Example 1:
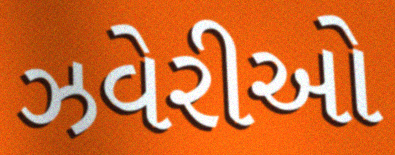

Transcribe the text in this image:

ઝવેરીઓ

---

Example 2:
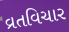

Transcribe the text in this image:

વ્રતવિચાર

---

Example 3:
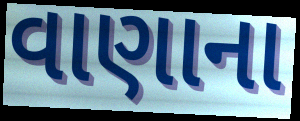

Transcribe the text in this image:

વાણાના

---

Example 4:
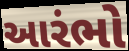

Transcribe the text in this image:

આરંભો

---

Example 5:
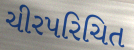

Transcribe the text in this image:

ચીરપરિચિત